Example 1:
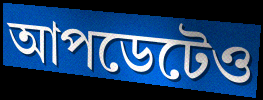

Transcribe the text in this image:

আপডেটেও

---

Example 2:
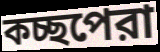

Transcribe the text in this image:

কচ্ছপেরা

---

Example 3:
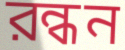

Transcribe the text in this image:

রন্ধন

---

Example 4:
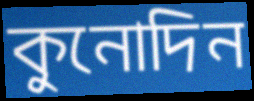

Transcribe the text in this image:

কুনোদিন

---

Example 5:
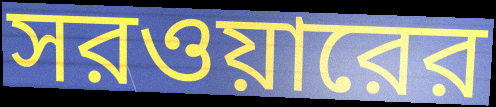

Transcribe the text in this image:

সরওয়ারের